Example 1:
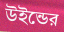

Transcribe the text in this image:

উইন্ডের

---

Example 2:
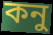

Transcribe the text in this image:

কনু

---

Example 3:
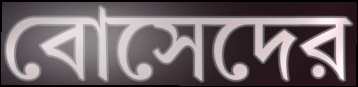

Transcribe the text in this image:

বোসেদের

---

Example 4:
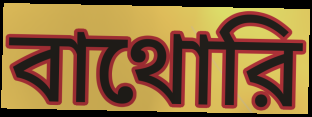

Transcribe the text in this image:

বাথোরি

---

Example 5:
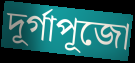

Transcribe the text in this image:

দূর্গাপূজো